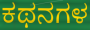
ಕಥನಗಳ